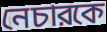
নেচারকে